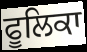
ਫੂਲਿਕਾ